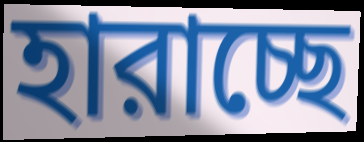
হারাচ্ছে